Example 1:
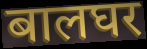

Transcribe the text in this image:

बालघर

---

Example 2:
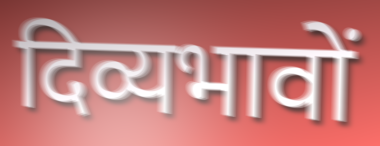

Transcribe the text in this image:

दिव्यभावों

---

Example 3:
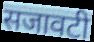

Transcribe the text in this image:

सजावटी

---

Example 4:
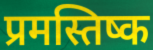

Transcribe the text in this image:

प्रमस्तिष्क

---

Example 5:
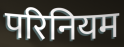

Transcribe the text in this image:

परिनियम